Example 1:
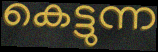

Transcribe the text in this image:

കെട്ടുന്ന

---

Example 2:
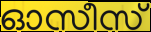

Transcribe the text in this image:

ഓസീസ്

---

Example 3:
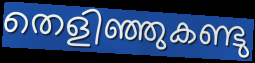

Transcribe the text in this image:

തെളിഞ്ഞുകണ്ടു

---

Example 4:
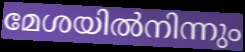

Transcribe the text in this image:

മേശയിൽനിന്നും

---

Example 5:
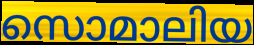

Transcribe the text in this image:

സൊമാലിയ